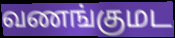
வணங்குமட